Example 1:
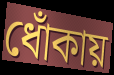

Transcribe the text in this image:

ধোঁকায়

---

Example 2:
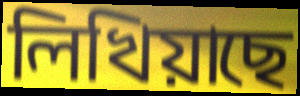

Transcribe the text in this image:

লিখিয়াছে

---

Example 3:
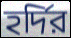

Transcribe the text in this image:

হর্দির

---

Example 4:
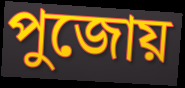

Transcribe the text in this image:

পুজোয়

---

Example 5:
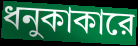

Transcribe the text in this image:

ধনুকাকারে